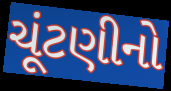
ચૂંટણીનો